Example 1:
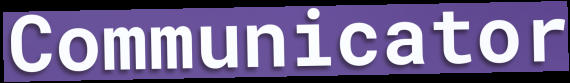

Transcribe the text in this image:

Communicator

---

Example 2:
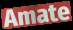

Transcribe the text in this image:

Amate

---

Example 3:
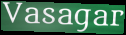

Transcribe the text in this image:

Vasagar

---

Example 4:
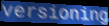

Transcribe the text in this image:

versioning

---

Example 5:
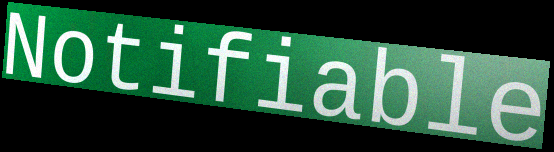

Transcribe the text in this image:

Notifiable